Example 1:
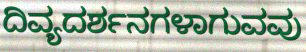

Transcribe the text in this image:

ದಿವ್ಯದರ್ಶನಗಳಾಗುವವು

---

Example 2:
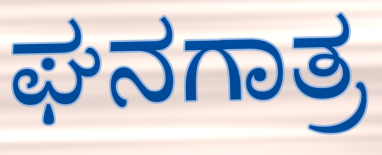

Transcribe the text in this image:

ಘನಗಾತ್ರ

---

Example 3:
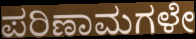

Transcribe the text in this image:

ಪರಿಣಾಮಗಳೇ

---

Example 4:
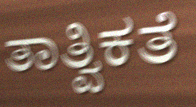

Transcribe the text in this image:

ತಾತ್ವಿಕತೆ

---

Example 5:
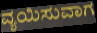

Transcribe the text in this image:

ವ್ಯಯಿಸುವಾಗ